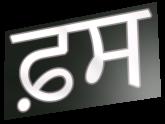
ਫ਼ਸ